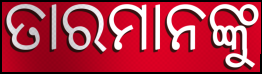
ତାରମାନଙ୍କୁ